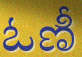
ఓణీ